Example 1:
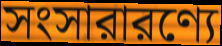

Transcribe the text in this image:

সংসারারণ্যে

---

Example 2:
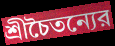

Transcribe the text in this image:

শ্রীচৈতন্যের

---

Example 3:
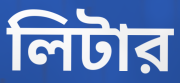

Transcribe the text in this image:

লিটার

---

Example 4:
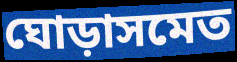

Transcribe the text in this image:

ঘোড়াসমেত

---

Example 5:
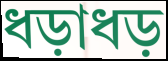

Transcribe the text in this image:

ধড়াধড়